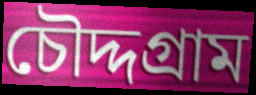
চৌদ্দগ্রাম